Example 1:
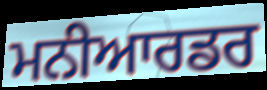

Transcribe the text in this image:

ਮਨੀਆਰਡਰ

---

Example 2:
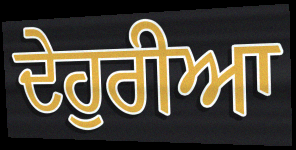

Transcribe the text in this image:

ਦੇਹੁਰੀਆ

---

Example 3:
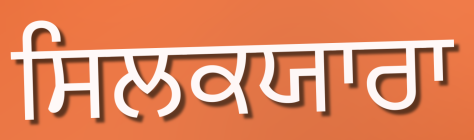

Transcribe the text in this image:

ਸਿਲਕਯਾਰਾ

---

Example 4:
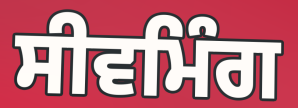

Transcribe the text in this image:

ਸੀਵਮਿੰਗ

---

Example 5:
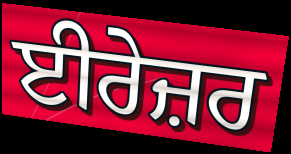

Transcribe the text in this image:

ਈਰੇਜ਼ਰ